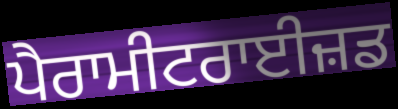
ਪੈਰਾਮੀਟਰਾਈਜ਼ਡ